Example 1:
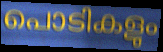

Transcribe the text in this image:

പൊടികളും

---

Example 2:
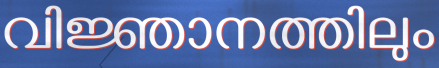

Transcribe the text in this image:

വിജ്ഞാനത്തിലും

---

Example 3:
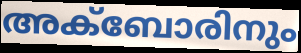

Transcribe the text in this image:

അക്ബോരിനും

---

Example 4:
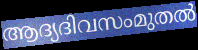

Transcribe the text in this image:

ആദ്യദിവസംമുതൽ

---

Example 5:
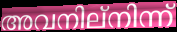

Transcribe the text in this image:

അവനില്നിന്ന്